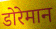
डोरेमान